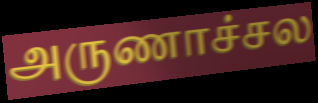
அருணாச்சல